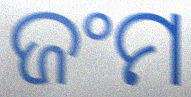
ଜଂମ